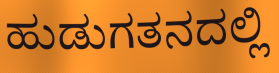
ಹುಡುಗತನದಲ್ಲಿ